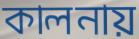
কালনায়